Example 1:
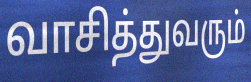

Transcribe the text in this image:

வாசித்துவரும்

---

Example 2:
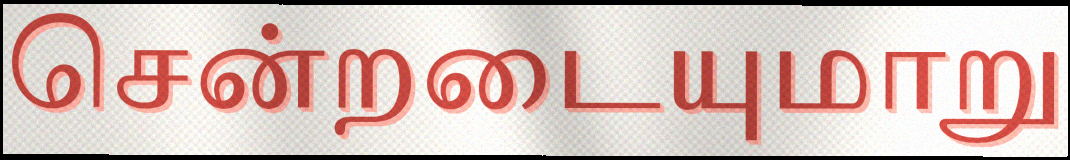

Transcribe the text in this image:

சென்றடையுமாறு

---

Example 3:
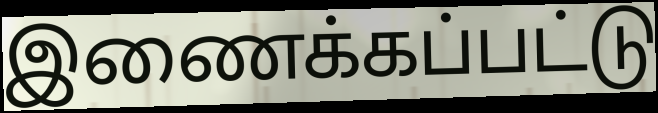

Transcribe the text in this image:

இணைக்கப்பட்டு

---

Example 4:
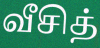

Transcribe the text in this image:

வீசித்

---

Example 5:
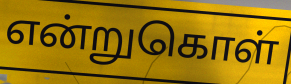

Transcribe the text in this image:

என்றுகொள்